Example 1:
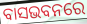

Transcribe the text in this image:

ବାସଭବନରେ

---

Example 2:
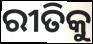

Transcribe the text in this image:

ରୀତିକୁ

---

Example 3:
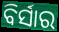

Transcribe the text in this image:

ବିର୍ସାର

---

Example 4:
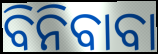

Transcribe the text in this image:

ବିନିବାବା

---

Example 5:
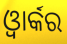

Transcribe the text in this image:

ଓ୍ବାର୍କର